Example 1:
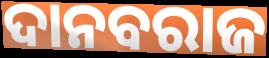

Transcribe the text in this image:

ଦାନବରାଜ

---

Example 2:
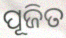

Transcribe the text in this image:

ପୂଜିତ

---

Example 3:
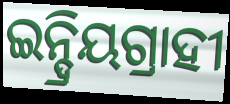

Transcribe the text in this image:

ଇନ୍ଦ୍ରିୟଗ୍ରାହୀ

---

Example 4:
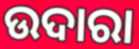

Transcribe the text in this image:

ଉଦାରା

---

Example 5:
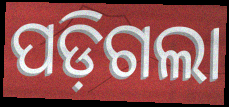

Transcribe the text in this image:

ପଡ଼ିଗଲା